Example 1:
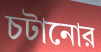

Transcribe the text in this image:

চটানোর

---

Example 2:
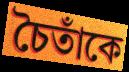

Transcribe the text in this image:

চৈতাঁকে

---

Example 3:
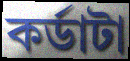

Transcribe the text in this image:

কর্ডাটা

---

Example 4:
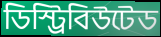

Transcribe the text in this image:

ডিস্ট্রিবিউটেড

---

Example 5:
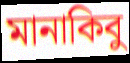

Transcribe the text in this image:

মানাকিবু